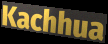
Kachhua